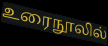
உரைநூலில்